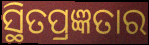
ସ୍ଥିତପ୍ରଜ୍ଞତାର